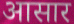
आसार